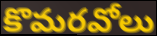
కొమరవోలు